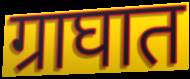
ग्राघात